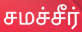
சமச்சீர்